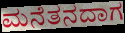
ಮನೆತನದಾಗ